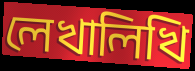
লেখালিখি